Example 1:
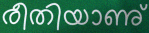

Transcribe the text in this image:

രീതിയാണു്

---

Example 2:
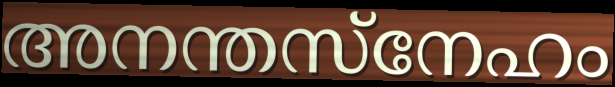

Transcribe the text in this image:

അനന്തസ്നേഹം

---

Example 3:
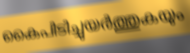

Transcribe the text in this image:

കൈപിടിച്ചുയർത്തുകയും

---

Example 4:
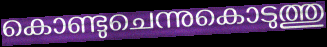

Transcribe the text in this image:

കൊണ്ടുചെന്നുകൊടുത്തു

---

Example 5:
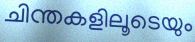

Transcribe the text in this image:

ചിന്തകളിലൂടെയും